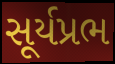
સૂર્યપ્રભ